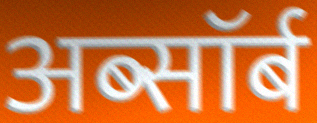
अब्सॉर्ब